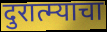
दुरात्म्याचा